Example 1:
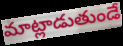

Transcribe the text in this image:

మాట్లాడుతుండే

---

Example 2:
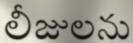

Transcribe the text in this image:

లీజులను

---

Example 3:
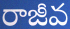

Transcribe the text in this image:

రాజీవ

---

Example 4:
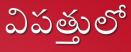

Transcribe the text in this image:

విపత్తులో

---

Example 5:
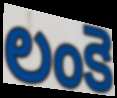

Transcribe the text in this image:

లంకె